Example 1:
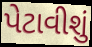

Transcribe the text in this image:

પેટાવીશું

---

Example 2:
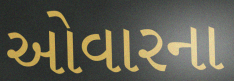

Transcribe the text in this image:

ઓવારના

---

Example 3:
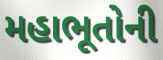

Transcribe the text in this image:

મહાભૂતોની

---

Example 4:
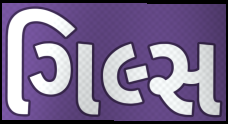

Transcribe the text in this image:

ગિલ્સ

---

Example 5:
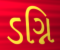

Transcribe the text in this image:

ઽગ્નિ